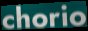
chorio